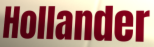
Hollander